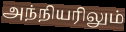
அந்நியரிலும்